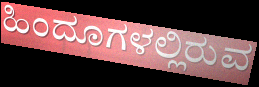
ಹಿಂದೂಗಳಲ್ಲಿರುವ